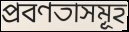
প্রবণতাসমূহ